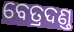
ବେତ୍ରଦଣ୍ଡ